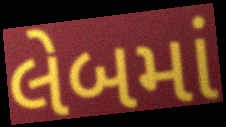
લેબમાં